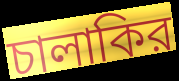
চালাকির